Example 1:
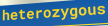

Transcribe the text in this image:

heterozygous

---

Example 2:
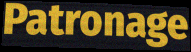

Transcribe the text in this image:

Patronage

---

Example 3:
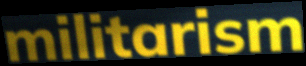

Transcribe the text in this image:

militarism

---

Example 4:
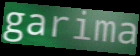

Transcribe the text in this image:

garima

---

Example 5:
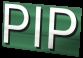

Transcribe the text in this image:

PIP